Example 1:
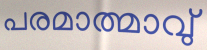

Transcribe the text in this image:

പരമാത്മാവു്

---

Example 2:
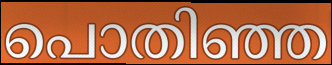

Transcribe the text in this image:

പൊതിഞ്ഞ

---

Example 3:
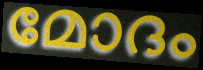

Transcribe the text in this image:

മോദം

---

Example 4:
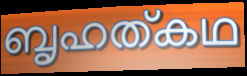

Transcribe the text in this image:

ബൃഹത്കഥ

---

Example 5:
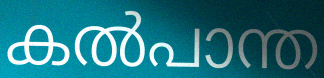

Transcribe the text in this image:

കൽപാന്ത